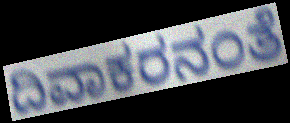
ದಿವಾಕರನಂತೆ